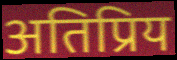
अतिप्रिय